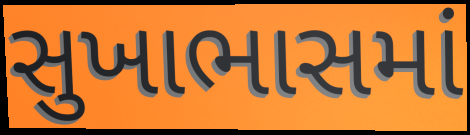
સુખાભાસમાં